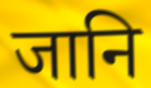
जानि